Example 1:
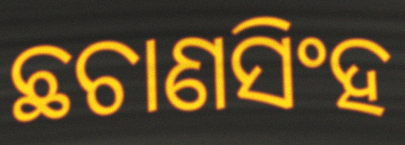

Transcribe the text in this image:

ଛଚାଣସିଂହ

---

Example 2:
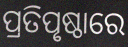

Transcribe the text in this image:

ପ୍ରତିପୃଷ୍ଠାରେ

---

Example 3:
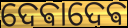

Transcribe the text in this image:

ଦେଵାଦେଵ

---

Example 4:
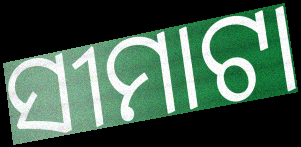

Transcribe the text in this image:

ସୀମାଟା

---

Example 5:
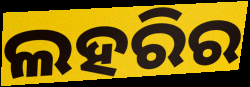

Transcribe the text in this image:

ଲହରିର